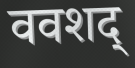
ववशद्